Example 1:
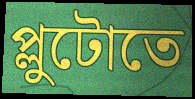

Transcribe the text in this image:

প্লুটোতে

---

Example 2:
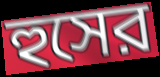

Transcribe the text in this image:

হুসের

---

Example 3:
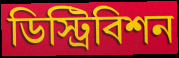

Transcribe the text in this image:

ডিস্ট্রিবিশন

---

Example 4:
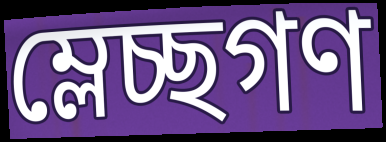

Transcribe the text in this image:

ম্লেচ্ছগণ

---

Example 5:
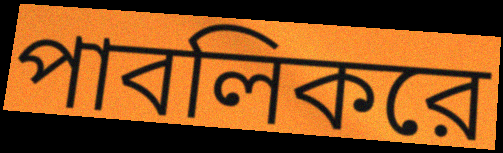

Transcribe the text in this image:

পাবলিকরে